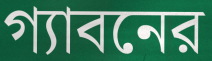
গ্যাবনের